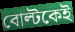
বোল্টকেই